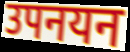
उपनयन